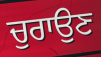
ਚੁਰਾਉਣ